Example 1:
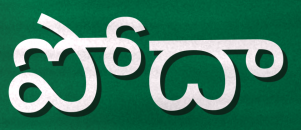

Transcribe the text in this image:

పోదా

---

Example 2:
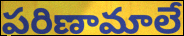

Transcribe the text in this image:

పరిణామాలే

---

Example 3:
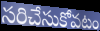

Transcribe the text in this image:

సరిచేసుకోవటం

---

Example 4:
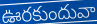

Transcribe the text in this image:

ఊరకుందువా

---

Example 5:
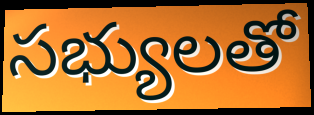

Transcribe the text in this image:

సభ్యులతో